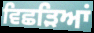
ਵਿਛੜਿਆਂ